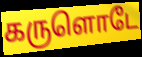
கருளொடே